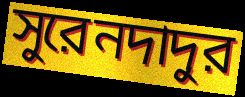
সুরেনদাদুর